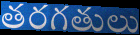
తరగతులు